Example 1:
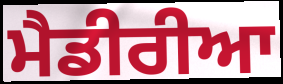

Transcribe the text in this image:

ਮੈਡੀਰੀਆ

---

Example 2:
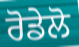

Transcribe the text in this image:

ਰੋਡੇਲੋ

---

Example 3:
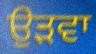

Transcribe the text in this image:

ਉੜਵਾ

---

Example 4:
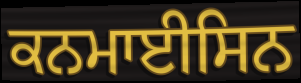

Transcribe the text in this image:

ਕਨਮਾਈਸਿਨ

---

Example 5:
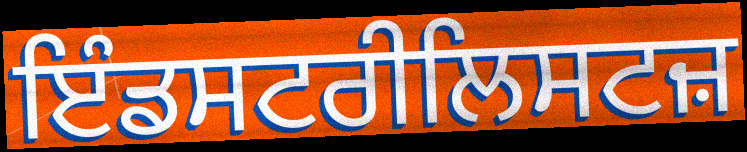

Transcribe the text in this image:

ਇੰਡਸਟਰੀਲਿਸਟਜ਼